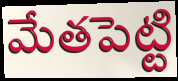
మేతపెట్టి